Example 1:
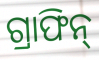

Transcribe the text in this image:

ଗ୍ରାଫିନ୍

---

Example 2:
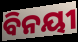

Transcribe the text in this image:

ବିନୟୀ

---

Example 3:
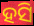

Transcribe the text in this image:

ହସି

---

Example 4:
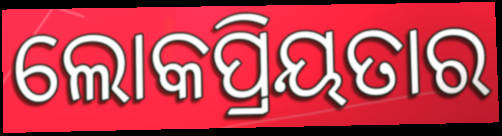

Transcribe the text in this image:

ଲୋକପ୍ରିୟତାର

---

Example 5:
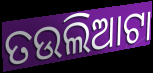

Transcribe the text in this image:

ତଉଲିଆଟା